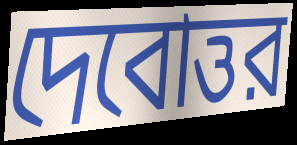
দেবোত্তর